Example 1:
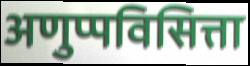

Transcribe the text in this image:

अणुप्पविसित्ता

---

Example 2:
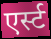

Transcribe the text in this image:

एर्स्ट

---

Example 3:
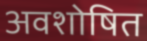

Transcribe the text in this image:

अवशोषित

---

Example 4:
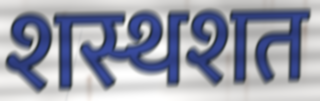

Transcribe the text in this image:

शस्थशत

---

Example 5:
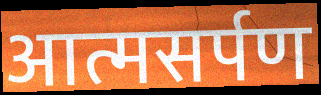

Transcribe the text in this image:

आत्मसर्पण